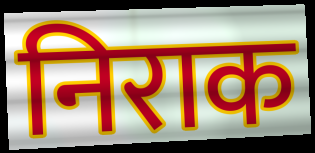
निराक